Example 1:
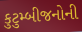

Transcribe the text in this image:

કુટુમ્બીજનોની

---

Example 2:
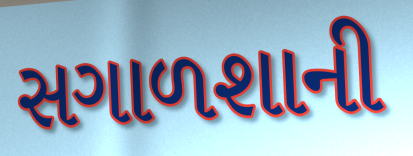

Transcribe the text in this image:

સગાળશાની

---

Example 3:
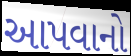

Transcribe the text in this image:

આપવાનો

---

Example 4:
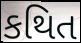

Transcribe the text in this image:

કથિત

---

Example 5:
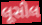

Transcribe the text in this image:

લૂસીલ